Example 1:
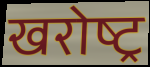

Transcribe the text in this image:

खरोष्ट्र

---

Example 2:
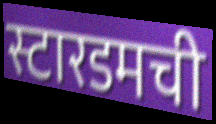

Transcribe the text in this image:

स्टारडमची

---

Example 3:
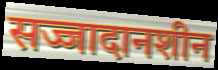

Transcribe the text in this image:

सज्जादानशीन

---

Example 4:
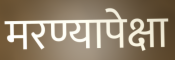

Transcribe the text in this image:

मरण्यापेक्षा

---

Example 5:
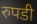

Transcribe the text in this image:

रुपडी